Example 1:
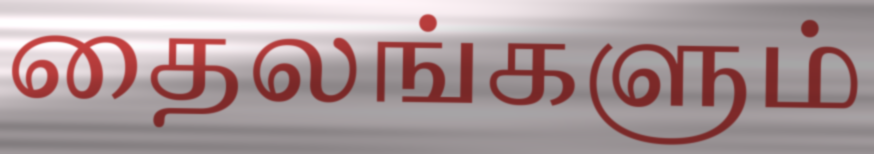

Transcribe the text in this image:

தைலங்களும்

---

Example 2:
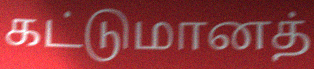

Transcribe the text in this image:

கட்டுமானத்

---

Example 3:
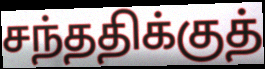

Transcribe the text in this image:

சந்ததிக்குத்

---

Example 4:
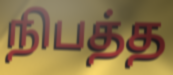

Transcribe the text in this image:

நிபத்த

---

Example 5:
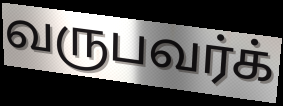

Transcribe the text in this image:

வருபவர்க்